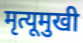
मृत्यूमुखी